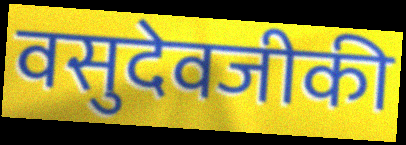
वसुदेवजीकी